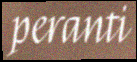
peranti